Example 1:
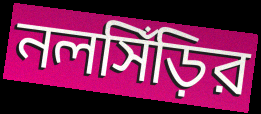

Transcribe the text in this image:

নলসিঁড়ির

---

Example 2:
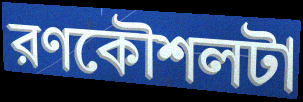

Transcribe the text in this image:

রণকৌশলটা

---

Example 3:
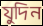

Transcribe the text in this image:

যুদিন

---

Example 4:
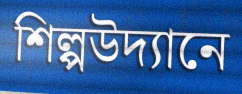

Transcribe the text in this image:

শিল্পউদ্যানে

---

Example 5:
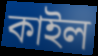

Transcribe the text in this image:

কাইল